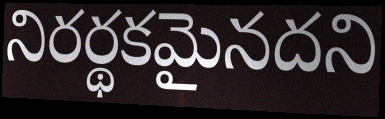
నిరర్థకమైనదని